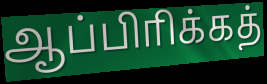
ஆப்பிரிக்கத்